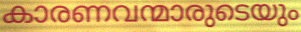
കാരണവന്മാരുടെയും